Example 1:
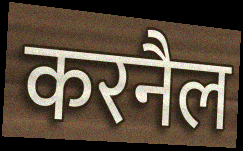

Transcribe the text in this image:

करनैल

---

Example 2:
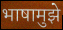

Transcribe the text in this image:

भाषामुझे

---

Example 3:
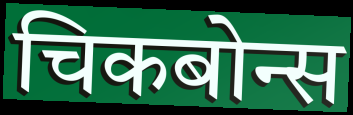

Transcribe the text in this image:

चिकबोन्स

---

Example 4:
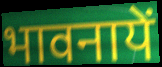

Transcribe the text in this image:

भावनायें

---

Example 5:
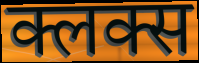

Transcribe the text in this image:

क्लक्स